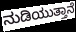
ನುಡಿಯುತ್ತಾನೆ